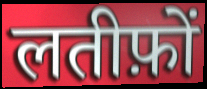
लतीफ़ों